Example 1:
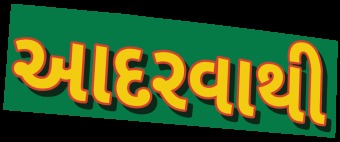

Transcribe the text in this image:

આદરવાથી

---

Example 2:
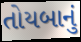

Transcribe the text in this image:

તોયબાનું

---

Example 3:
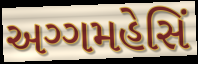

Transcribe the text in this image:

અગ્ગમહેસિં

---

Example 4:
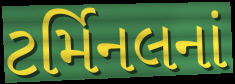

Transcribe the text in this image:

ટર્મિનલનાં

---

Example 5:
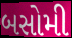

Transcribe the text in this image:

બસોમી